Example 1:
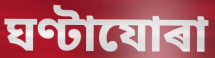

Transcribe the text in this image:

ঘণ্টাযোৰা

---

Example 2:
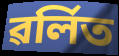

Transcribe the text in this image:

ৱৰ্লিত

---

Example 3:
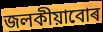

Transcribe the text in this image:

জলকীয়াবোৰ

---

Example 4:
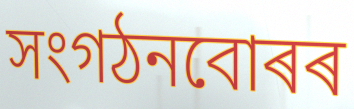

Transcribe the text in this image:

সংগঠনবোৰৰ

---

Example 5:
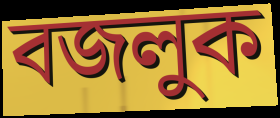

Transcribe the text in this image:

বজলুক